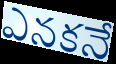
ఎనకనే